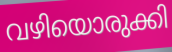
വഴിയൊരുക്കി